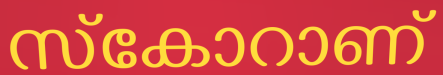
സ്‌കോറാണ്